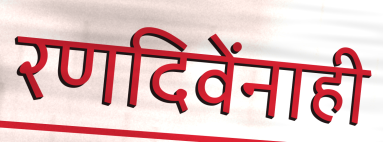
रणदिवेंनाही